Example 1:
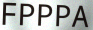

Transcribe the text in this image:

FPPPA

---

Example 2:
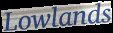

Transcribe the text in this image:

Lowlands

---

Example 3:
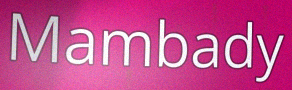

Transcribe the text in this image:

Mambady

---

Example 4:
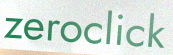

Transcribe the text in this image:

zeroclick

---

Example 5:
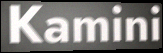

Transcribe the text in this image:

Kamini